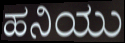
ಹನಿಯು